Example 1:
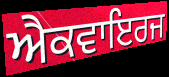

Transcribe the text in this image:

ਐਕਵਾਇਰਜ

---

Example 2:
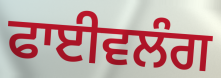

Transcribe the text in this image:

ਫਾਈਵਲੰਗ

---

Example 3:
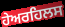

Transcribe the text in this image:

ਹੇਅਰਹਿਲਸ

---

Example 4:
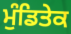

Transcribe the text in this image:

ਮੁੰਡਿਤੇਕ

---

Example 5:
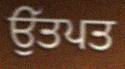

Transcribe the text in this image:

ਉੱਤਪਤ